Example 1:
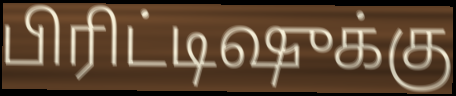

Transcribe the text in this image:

பிரிட்டிஷுக்கு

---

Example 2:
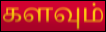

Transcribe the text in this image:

களவும்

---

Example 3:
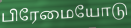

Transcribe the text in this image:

பிரேமையோடு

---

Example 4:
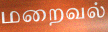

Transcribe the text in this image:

மறைவல்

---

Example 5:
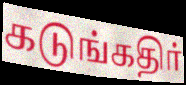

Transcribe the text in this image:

கடுங்கதிர்